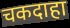
चकदाहा